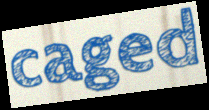
caged